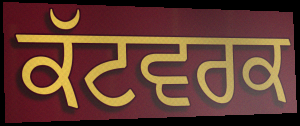
ਕੱਟਵਰਕ